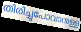
തിരിച്ചുപോവാനുള്ള